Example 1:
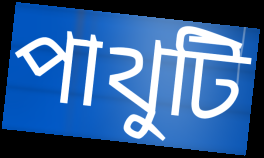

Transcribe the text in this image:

পাথুটি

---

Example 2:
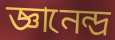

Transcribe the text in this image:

জ্ঞানেন্দ্র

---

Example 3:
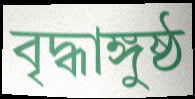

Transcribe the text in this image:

বৃদ্ধাঙ্গুষ্ঠ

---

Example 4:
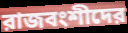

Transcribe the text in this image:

রাজবংশীদের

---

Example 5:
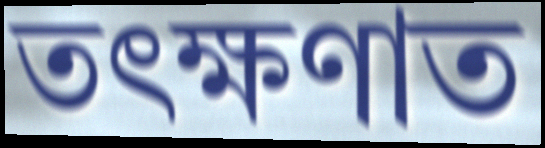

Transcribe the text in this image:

তৎক্ষণাত